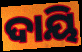
ଦାୟି